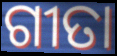
ଗୀତା